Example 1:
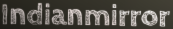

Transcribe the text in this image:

Indianmirror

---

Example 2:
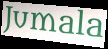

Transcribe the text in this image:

Jumala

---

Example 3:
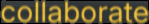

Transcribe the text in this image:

collaborate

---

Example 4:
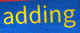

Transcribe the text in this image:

adding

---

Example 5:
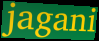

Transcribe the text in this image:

jagani